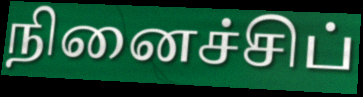
நினைச்சிப்